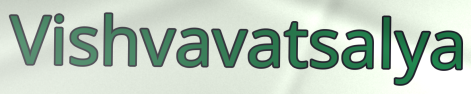
Vishvavatsalya